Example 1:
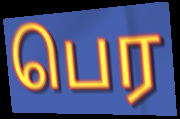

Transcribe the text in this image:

பெர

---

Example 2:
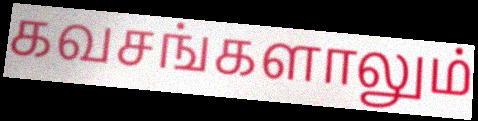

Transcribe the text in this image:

கவசங்களாலும்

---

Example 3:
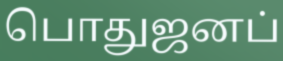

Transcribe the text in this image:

பொதுஜனப்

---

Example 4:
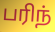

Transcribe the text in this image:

பரிந்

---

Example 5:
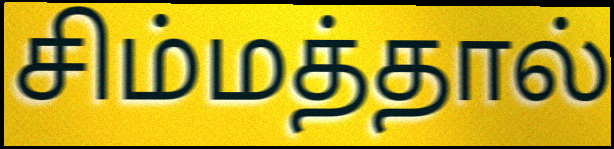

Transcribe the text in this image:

சிம்மத்தால்